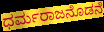
ಧರ್ಮರಾಜನೊಡನೆ